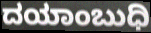
ದಯಾಂಬುಧಿ